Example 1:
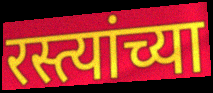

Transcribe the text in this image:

रस्त्यांच्या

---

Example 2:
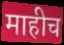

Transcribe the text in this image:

माहीच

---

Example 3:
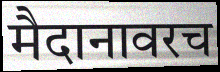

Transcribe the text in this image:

मैदानावरच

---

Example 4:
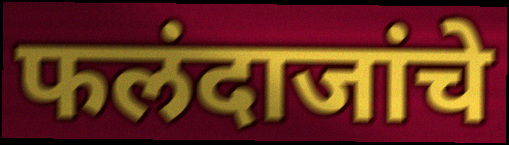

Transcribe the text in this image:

फलंदाजांचे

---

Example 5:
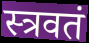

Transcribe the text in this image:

स्त्रवतं